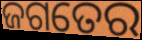
ଜଗତେର